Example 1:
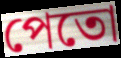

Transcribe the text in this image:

পেতো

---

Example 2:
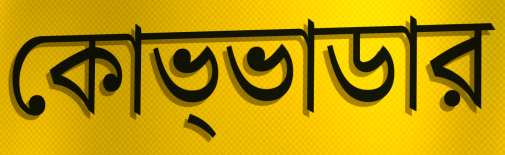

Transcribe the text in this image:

কোভ্ভাডার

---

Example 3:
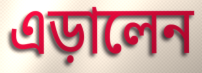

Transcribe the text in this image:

এড়ালেন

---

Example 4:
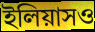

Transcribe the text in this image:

ইলিয়াসও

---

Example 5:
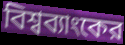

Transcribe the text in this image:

বিশ্বব্যাংকের